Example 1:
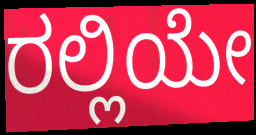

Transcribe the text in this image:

ರಲ್ಲಿಯೇ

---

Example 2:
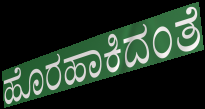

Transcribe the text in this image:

ಹೊರಹಾಕಿದಂತೆ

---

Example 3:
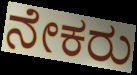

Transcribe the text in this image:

ನೇಕರು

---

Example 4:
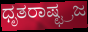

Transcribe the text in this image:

ಧೃತರಾಷ್ಟ್ರಜ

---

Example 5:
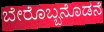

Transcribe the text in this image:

ಬೇರೊಬ್ಬನೊಡನೆ